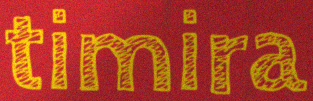
timira